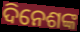
ଦିନେଶଙ୍କ